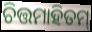
ଚିତ୍ତମାହିତମ୍